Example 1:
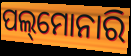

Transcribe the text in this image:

ପଲ୍‌ମୋନାରି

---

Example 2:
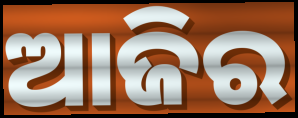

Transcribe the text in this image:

ଆଜିର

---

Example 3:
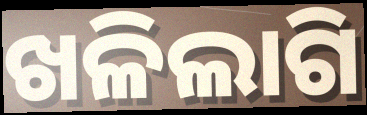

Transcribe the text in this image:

ଖଳିଲାଗି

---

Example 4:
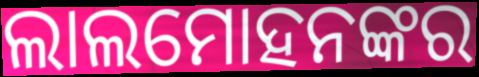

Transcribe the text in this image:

ଲାଲମୋହନଙ୍କର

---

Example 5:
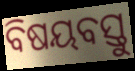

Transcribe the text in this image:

ବିଷୟବସ୍ତୁ